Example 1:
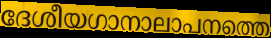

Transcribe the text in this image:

ദേശീയഗാനാലാപനത്തെ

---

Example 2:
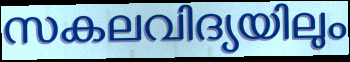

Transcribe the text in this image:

സകലവിദ്യയിലും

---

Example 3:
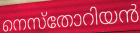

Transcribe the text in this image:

നെസ്തോറിയൻ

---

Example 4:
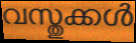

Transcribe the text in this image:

വസ്തുക്കൾ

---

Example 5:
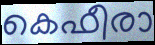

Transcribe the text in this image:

കെഫീരാ